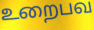
உறைபவ